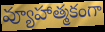
వ్యూహాత్మకంగా